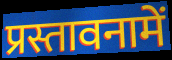
प्रस्तावनामें